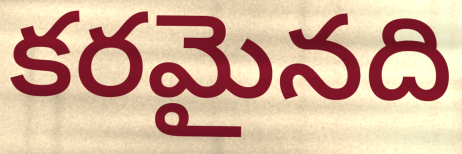
కరమైనది